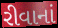
રીવાનાં